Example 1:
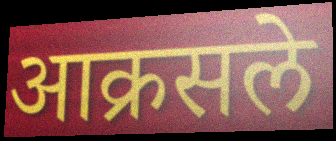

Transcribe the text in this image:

आक्रसले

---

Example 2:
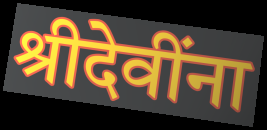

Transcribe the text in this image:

श्रीदेवींना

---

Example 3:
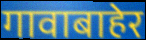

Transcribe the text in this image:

गावाबाहेर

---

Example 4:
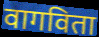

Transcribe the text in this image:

वागविता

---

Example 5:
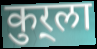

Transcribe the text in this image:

कुर्ला